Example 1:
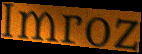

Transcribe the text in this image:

Imroz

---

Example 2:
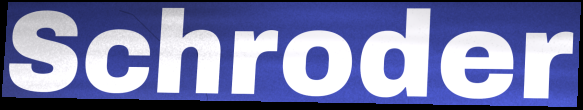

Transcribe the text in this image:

Schroder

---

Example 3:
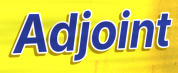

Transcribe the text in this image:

Adjoint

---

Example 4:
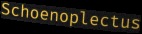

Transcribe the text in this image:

Schoenoplectus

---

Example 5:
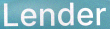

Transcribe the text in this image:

Lender